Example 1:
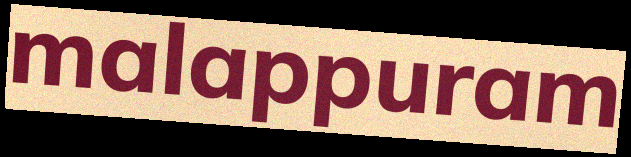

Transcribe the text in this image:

malappuram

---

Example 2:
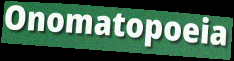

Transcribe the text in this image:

Onomatopoeia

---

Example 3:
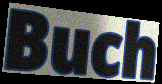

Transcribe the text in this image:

Buch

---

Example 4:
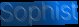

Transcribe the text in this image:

Sophist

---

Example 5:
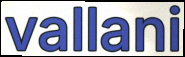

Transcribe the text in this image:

vallani